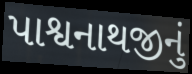
પાશ્વનાથજીનું